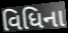
વિધિના